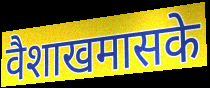
वैशाखमासके